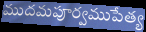
ముదమపూర్వముపేత్య